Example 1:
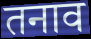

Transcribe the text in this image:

तनाव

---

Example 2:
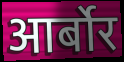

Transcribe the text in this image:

आर्बोर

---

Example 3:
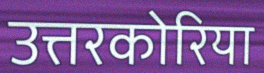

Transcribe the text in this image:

उत्तरकोरिया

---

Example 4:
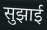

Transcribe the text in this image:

सुझाई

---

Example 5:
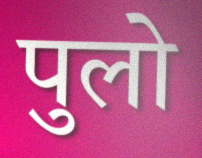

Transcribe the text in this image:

पुलो